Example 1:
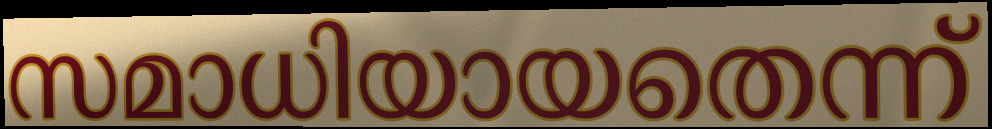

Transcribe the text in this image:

സമാധിയായതെന്ന്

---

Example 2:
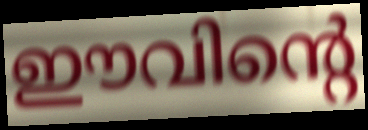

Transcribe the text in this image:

ഈവിന്റെ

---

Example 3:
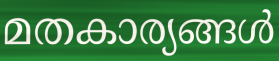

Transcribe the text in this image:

മതകാര്യങ്ങൾ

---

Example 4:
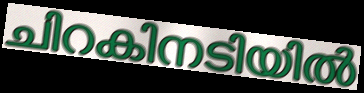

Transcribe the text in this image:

ചിറകിനടിയിൽ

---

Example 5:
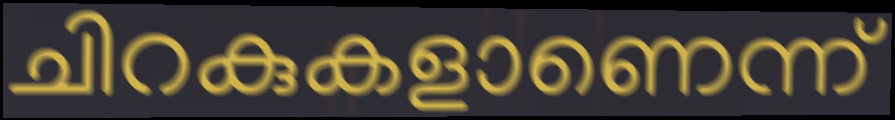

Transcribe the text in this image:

ചിറകുകളാണെന്ന്